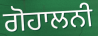
ਗੋਹਾਲਨੀ